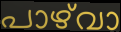
പാഴ്‌വാ